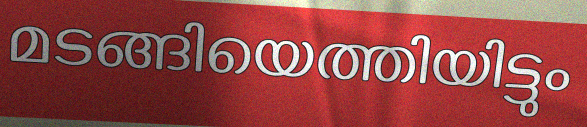
മടങ്ങിയെത്തിയിട്ടും